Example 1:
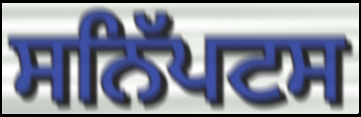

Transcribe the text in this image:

ਸਨਿੱਪਟਸ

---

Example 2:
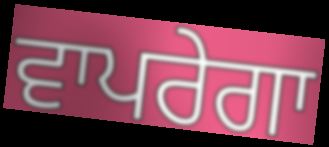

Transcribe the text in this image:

ਵਾਪਰੇਗਾ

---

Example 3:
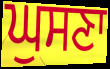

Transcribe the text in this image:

ਘੁਸਣਾ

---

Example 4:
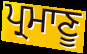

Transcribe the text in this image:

ਪ੍ਰਮਾਣੂ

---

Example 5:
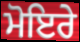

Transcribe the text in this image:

ਮੋਇਰੇ